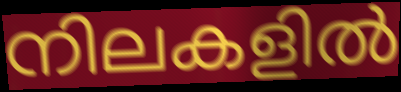
നിലകളിൽ